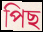
পিছ